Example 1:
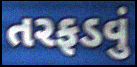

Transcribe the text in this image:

તરફડવું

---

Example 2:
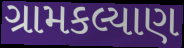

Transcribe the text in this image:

ગ્રામકલ્યાણ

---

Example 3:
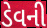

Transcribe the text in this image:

ડેવની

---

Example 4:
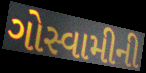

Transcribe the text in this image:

ગોસ્વામીની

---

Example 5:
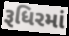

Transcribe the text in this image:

રૂધિરમાં